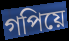
গপিয়ে